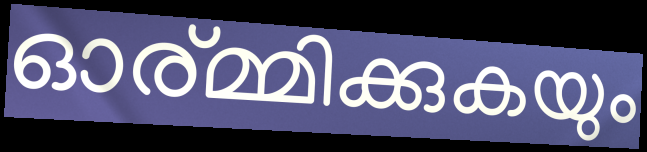
ഓര്മ്മിക്കുകയും